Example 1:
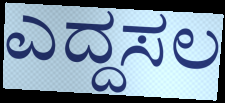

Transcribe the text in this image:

ಎದ್ದಸಲ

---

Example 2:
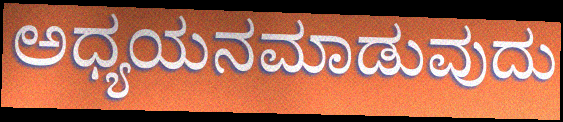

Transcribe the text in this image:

ಅಧ್ಯಯನಮಾಡುವುದು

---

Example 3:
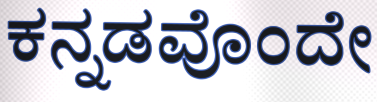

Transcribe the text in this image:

ಕನ್ನಡವೊಂದೇ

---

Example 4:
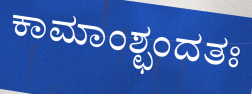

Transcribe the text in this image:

ಕಾಮಾಂಶ್ಛಂದತಃ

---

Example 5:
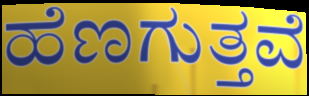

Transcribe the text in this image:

ಹೆಣಗುತ್ತವೆ